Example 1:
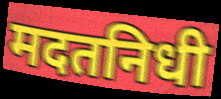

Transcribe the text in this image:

मदतनिधी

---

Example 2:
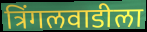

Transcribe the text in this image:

त्रिंगलवाडीला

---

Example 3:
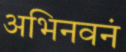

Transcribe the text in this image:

अभिनवनं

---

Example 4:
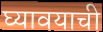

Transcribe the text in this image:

घ्यावयाची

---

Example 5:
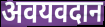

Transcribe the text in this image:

अवयवदान